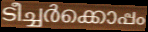
ടീച്ചർക്കൊപ്പം